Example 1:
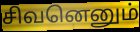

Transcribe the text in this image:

சிவனெனும்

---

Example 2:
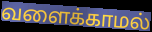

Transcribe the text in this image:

வளைக்காமல்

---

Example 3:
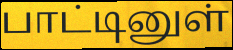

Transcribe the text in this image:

பாட்டினுள்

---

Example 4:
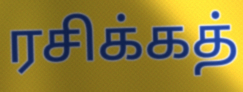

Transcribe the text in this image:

ரசிக்கத்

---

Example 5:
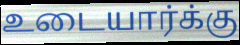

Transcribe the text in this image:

உடையார்க்கு